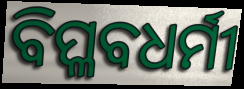
ବିପ୍ଳବଧର୍ମୀ